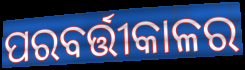
ପରବର୍ତ୍ତୀକାଳର